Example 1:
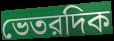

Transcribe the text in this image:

ভেতরদিক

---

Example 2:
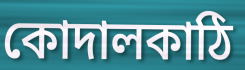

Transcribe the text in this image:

কোদালকাঠি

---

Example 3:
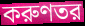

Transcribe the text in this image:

করুণতর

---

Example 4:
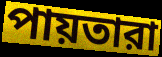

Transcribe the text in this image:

পায়তারা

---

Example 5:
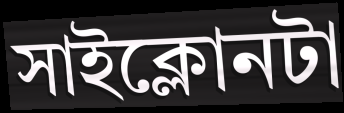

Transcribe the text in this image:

সাইক্লোনটা